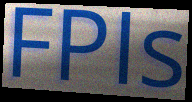
FPIs